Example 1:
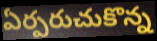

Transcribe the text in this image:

ఏర్పరుచుకొన్న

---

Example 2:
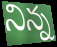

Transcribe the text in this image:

నిన్న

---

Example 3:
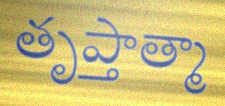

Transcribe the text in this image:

తృప్తాత్మా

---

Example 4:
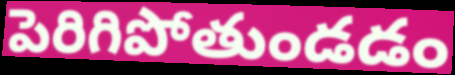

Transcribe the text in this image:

పెరిగిపోతుండడం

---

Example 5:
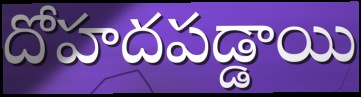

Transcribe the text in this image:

దోహదపడ్డాయి